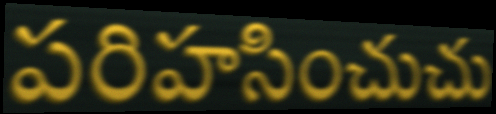
పరిహసించుచు